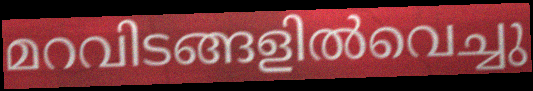
മറവിടങ്ങളിൽവെച്ചു